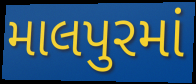
માલપુરમાં